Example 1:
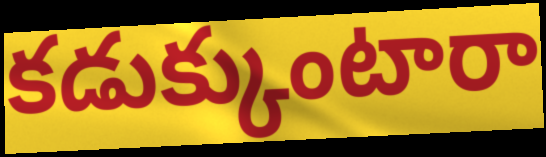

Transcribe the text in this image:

కడుక్కుంటారా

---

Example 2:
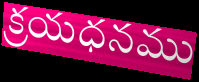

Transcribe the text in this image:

క్రయధనము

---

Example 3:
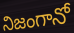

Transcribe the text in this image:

నిజంగానో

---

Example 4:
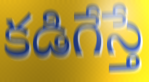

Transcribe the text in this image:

కడిగేస్తే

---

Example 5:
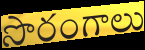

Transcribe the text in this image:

సొరంగాలు